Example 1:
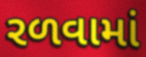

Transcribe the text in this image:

રળવામાં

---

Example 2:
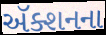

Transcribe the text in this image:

ઍક્શનના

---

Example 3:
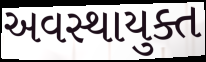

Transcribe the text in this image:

અવસ્થાયુક્ત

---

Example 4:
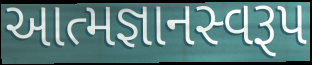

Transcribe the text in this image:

આત્મજ્ઞાનસ્વરૂપ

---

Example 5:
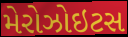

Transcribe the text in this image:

મેરોઝોઇટસ